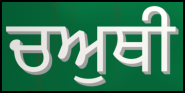
ਚਅੁਥੀ